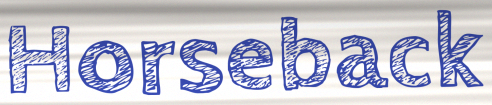
Horseback